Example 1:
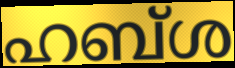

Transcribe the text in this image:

ഹബ്ശ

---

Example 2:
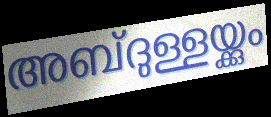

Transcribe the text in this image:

അബ്ദുള്ളയ്ക്കും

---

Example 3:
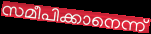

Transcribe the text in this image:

സമീപിക്കാനെന്ന്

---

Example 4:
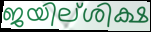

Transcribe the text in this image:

ജയില്ശിക്ഷ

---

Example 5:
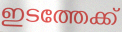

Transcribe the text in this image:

ഇടത്തേക്ക്